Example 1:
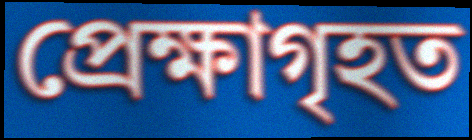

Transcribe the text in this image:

প্ৰেক্ষাগৃহত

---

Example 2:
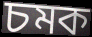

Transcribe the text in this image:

চমক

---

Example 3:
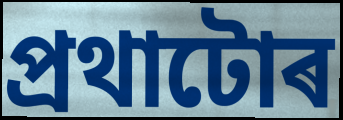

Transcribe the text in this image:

প্ৰথাটোৰ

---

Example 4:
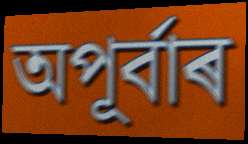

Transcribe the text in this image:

অপূৰ্বাৰ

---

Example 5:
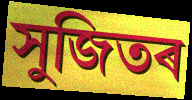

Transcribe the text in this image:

সুজিতৰ